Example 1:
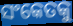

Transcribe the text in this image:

ସଂକେତକୁ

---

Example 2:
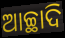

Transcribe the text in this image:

ଆଚ୍ଛାଦି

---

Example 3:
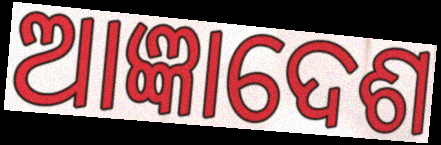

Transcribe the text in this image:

ଆଜ୍ଞାଦେଶ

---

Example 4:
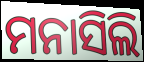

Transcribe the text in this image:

ମନାସିଲି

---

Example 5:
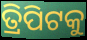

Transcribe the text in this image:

ତ୍ରିପିଟକୁ